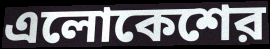
এলোকেশের